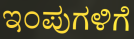
ಇಂಪುಗಳಿಗೆ